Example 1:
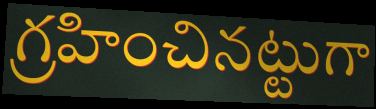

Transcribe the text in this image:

గ్రహించినట్టుగా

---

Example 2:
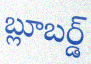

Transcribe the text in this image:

బ్లూబర్డ్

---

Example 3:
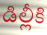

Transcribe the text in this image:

డిల్లీకి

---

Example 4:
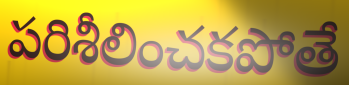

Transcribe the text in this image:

పరిశీలించకపోతే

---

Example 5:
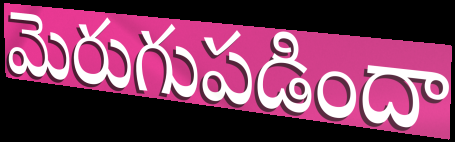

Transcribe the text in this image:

మెరుగుపడిందా